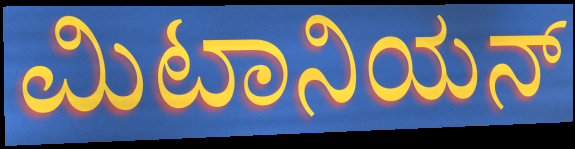
ಮಿಟಾನಿಯನ್